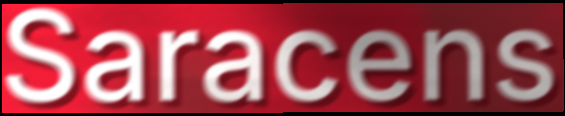
Saracens